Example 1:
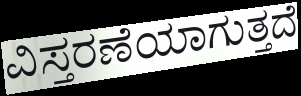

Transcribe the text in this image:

ವಿಸ್ತರಣೆಯಾಗುತ್ತದೆ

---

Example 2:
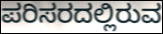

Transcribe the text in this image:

ಪರಿಸರದಲ್ಲಿರುವ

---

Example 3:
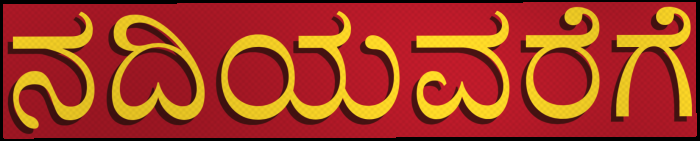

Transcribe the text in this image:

ನದಿಯವರೆಗೆ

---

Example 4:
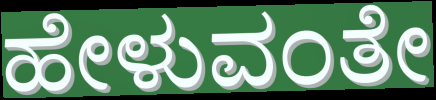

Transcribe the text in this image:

ಹೇಳುವಂತೇ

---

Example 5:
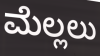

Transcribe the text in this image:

ಮೆಲ್ಲಲು